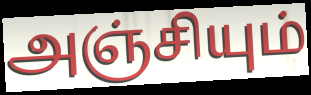
அஞ்சியும்